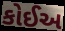
કોઈઅ